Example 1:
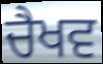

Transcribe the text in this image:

ਚੈਖਵ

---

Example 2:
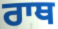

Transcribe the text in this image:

ਰਾਥ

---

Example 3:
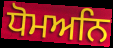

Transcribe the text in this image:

ਧੋਮਅਨਿ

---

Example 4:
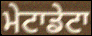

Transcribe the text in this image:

ਮੇਟਾਡੇਟਾ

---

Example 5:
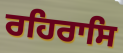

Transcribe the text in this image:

ਰਹਿਰਾਸਿ